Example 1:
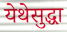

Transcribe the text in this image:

येथेसुद्धा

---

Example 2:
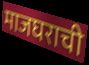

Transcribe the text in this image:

माजघराची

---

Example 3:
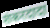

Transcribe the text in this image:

शंकरदादा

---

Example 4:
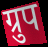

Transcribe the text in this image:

ग्रुप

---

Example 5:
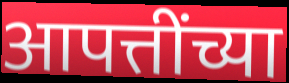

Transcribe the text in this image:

आपत्तींच्या